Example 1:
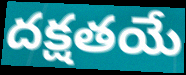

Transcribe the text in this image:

దక్షతయే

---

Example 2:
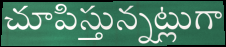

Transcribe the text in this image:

చూపిస్తున్నట్లుగా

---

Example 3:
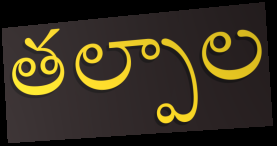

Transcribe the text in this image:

తల్పాల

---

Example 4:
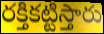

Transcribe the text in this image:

రక్తికట్టిస్తారు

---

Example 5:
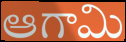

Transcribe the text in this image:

ఆగామి